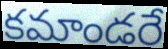
కమాండరే